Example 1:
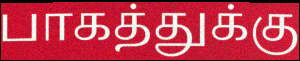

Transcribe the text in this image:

பாகத்துக்கு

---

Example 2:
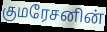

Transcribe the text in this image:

குமரேசனின்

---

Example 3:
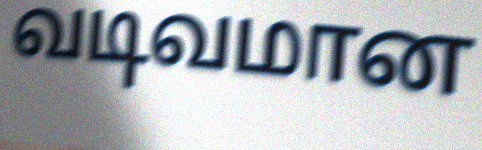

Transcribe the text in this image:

வடிவமான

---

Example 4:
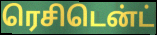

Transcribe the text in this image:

ரெசிடென்ட்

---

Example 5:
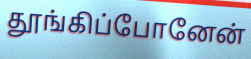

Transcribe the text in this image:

தூங்கிப்போனேன்